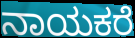
ನಾಯಕರೆ